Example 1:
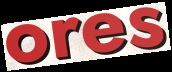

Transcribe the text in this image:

ores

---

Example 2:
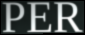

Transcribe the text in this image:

PER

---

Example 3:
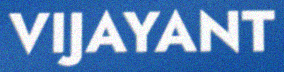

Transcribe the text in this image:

VIJAYANT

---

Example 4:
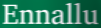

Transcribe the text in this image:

Ennallu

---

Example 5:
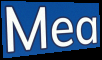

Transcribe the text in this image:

Mea